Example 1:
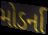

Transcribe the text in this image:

મોડર્ના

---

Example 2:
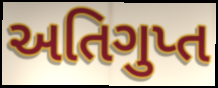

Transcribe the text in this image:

અતિગુપ્ત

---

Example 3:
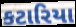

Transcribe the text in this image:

કટારિયા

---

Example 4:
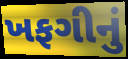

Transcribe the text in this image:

ખફગીનું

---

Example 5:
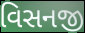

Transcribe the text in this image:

વિસનજી